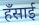
हँसाई